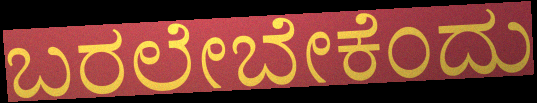
ಬರಲೇಬೇಕೆಂದು